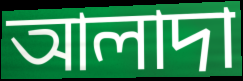
আলাদা